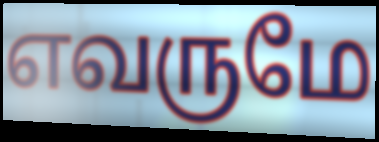
எவருமே